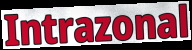
Intrazonal